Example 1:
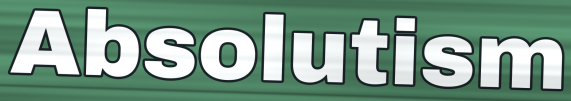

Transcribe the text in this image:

Absolutism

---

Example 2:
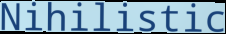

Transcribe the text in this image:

Nihilistic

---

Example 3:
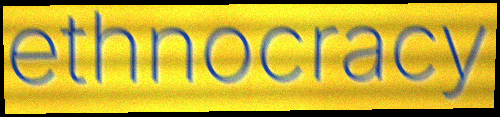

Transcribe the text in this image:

ethnocracy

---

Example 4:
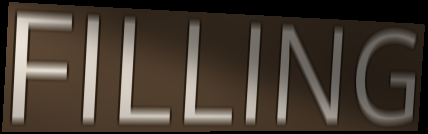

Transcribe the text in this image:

FILLING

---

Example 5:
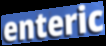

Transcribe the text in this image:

enteric